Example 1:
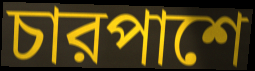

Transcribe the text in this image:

চারপাশে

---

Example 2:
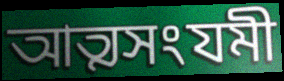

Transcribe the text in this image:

আত্মসংযমী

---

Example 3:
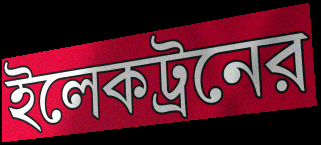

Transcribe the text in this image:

ইলেকট্রনের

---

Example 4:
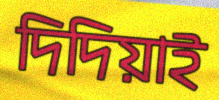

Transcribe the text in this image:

দিদিয়াই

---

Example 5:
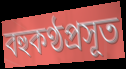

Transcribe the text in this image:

বহুকণ্ঠপ্রসূত